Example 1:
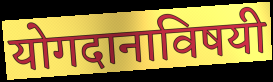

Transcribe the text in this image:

योगदानाविषयी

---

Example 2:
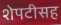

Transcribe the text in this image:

शेपटीसह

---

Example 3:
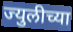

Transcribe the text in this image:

ज्युलीच्या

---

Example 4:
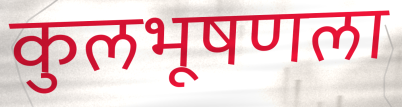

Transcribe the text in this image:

कुलभूषणला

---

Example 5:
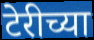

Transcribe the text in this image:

टेरीच्या